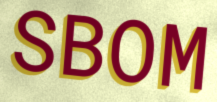
SBOM